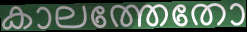
കാലത്തേതോ